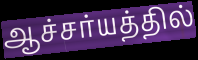
ஆச்சர்யத்தில்